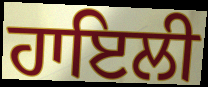
ਹਾਇਲੀ